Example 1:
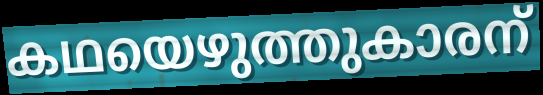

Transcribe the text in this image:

കഥയെഴുത്തുകാരന്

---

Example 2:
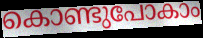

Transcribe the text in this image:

കൊണ്ടുപോകാം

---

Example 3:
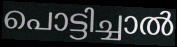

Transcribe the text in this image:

പൊട്ടിച്ചാൽ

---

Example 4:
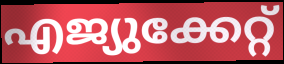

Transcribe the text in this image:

എജ്യുക്കേറ്റ്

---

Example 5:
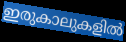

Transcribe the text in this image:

ഇരുകാലുകളിൽ